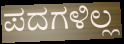
ಪದಗಳಿಲ್ಲ